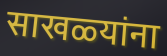
साखळ्यांना